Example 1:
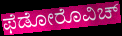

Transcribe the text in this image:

ಫೆಡೋರೊವಿಚ್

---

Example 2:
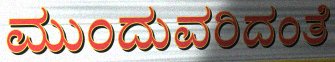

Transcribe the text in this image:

ಮುಂದುವರಿದಂತೆ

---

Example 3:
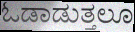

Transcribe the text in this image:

ಓಡಾಡುತ್ತಲೂ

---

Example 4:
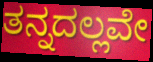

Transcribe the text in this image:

ತನ್ನದಲ್ಲವೇ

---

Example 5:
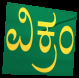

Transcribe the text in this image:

ವಿಕ್ರಂ